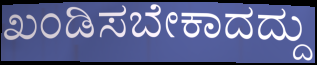
ಖಂಡಿಸಬೇಕಾದದ್ದು